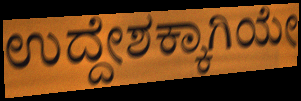
ಉದ್ದೇಶಕ್ಕಾಗಿಯೇ